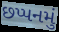
છપ્પનમું